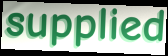
supplied